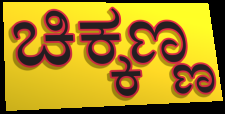
ಚಿಕ್ಕಣ್ಣ